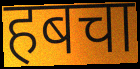
हबचा